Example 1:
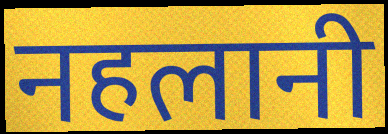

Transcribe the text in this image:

नहलानी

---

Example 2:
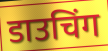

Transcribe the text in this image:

डाउचिंग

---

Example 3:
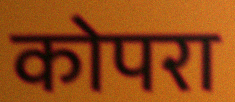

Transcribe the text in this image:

कोपरा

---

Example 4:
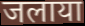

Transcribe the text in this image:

जलाया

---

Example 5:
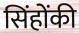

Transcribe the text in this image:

सिंहोंकी